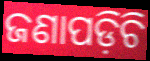
ଜଣାପଡ଼ିଚି